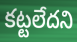
కట్టలేదని